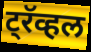
ट्रॅव्हल